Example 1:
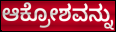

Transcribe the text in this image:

ಆಕ್ರೋಶವನ್ನು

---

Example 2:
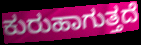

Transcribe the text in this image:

ಕುರುಹಾಗುತ್ತದೆ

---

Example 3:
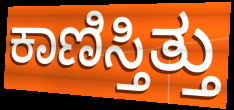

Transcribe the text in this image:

ಕಾಣಿಸ್ತಿತ್ತು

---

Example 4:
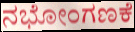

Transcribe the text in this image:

ನಭೋಂಗಣಕೆ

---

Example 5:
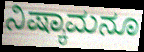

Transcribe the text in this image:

ನಿಷ್ಕಾಮನೂ